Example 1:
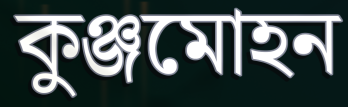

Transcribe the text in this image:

কুঞ্জমোহন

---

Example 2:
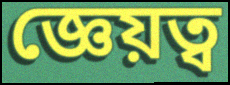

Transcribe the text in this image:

জ্ঞেয়ত্ব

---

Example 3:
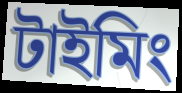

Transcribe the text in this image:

টাইমিং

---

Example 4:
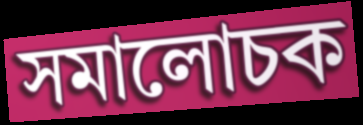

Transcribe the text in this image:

সমালোচক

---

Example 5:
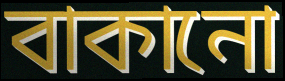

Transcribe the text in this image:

বাকানো